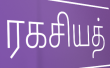
ரகசியத்